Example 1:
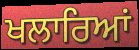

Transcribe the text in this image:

ਖਲਾਰਿਆਂ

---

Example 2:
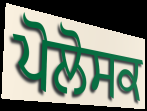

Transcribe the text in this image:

ਪੋਲੋਸਕ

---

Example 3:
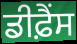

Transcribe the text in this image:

ਡੀਫ਼ੈਂਸ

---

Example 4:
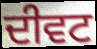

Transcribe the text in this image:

ਦੀਵਟ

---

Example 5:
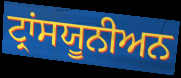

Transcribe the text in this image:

ਟ੍ਰਾਂਸਯੂਨੀਅਨ